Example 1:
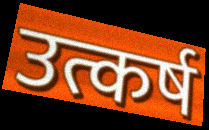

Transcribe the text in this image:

उत्कर्ष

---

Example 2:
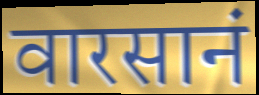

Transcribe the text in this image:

वारसानं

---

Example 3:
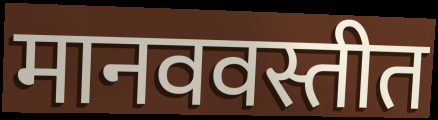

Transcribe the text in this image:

मानववस्तीत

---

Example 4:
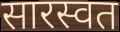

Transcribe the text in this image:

सारस्वत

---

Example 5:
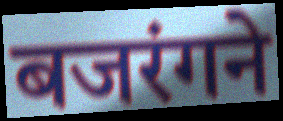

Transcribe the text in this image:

बजरंगने